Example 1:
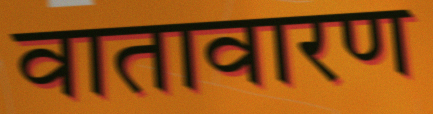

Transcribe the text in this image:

वातावारण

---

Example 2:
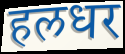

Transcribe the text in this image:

हलधर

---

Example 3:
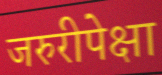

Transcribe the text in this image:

जरुरीपेक्षा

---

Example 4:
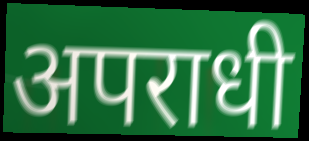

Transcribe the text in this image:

अपराधी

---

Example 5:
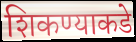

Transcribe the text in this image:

शिकण्याकडे